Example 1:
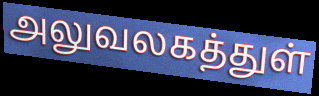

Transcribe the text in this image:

அலுவலகத்துள்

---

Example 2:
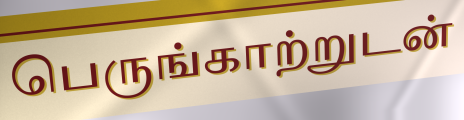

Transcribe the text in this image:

பெருங்காற்றுடன்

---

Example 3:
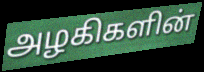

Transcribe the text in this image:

அழகிகளின்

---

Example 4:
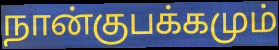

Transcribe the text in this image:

நான்குபக்கமும்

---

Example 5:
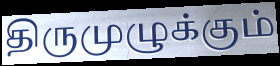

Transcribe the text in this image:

திருமுழுக்கும்